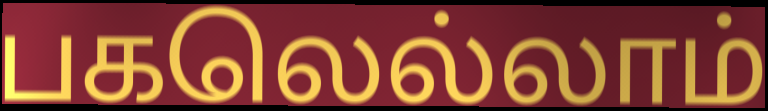
பகலெல்லாம்